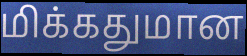
மிக்கதுமான